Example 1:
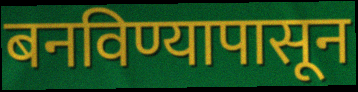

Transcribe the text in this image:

बनविण्यापासून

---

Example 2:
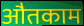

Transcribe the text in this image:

औतकाम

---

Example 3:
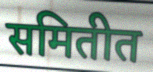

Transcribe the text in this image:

समितीत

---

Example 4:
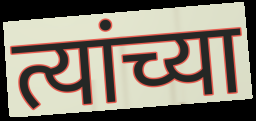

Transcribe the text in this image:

त्यांच्या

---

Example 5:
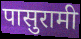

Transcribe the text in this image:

पासुरामी